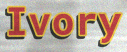
Ivory